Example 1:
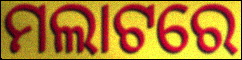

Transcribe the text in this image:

ମଲାଟରେ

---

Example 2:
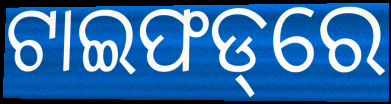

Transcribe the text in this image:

ଟାଇଫଡ୍‌ରେ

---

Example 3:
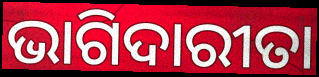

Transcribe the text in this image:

ଭାଗିଦାରୀତା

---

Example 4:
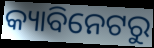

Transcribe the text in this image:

କ୍ୟାବିନେଟରୁ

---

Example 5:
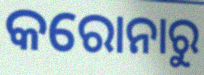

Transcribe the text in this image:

କରୋନାରୁ